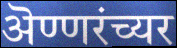
ऄण्णरंच्यर